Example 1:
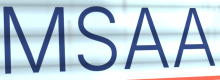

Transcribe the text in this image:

MSAA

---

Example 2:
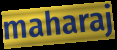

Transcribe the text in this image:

maharaj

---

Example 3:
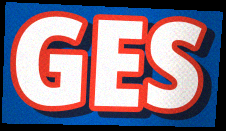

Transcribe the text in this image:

GES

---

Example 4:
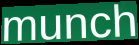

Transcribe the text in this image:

munch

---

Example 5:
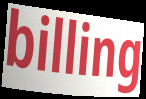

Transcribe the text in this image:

billing